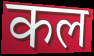
कल